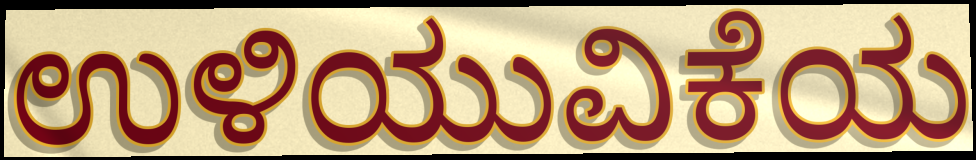
ಉಳಿಯುವಿಕೆಯ